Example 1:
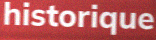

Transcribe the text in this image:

historique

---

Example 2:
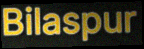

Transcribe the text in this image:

Bilaspur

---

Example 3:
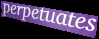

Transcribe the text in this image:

perpetuates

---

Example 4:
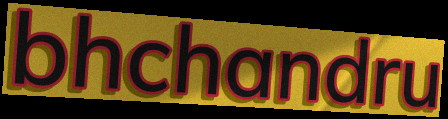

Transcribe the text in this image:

bhchandru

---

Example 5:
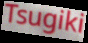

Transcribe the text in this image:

Tsugiki